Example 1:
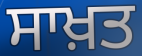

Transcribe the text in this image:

ਸਾਖ਼ਤ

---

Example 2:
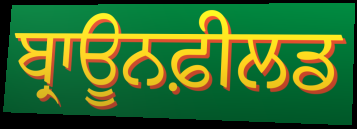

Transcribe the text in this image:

ਬ੍ਰਾਊਨਫ਼ੀਲਡ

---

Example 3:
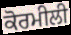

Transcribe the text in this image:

ਕੋਰਮੀਲੀ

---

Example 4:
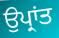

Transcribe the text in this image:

ਉਪ੍ਰਾਂਤ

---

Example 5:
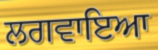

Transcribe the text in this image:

ਲਗਵਾਇਆ